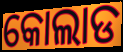
କୋଲାଡ